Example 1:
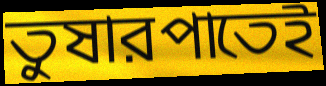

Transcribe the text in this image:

তুষারপাতেই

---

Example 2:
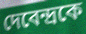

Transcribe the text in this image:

দেবেন্দ্রকে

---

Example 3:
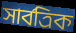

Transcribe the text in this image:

সার্বত্রিক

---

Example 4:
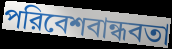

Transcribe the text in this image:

পরিবেশবান্ধবতা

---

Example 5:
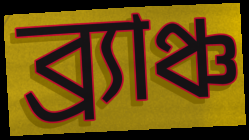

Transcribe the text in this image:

ব্র্যাঞ্চ